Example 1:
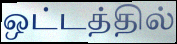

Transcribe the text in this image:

ஒட்டத்தில்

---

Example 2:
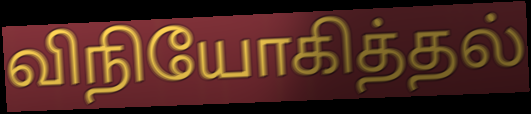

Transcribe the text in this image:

விநியோகித்தல்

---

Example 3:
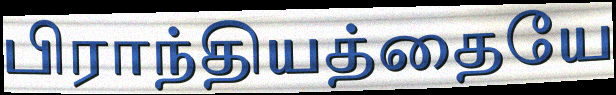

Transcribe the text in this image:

பிராந்தியத்தையே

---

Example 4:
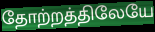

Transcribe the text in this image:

தோற்றத்திலேயே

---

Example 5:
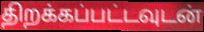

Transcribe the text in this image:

திறக்கப்பட்டவுடன்